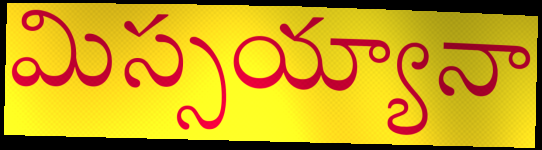
మిస్సయ్యానా